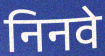
निनवे